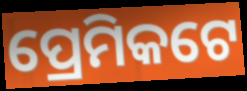
ପ୍ରେମିକଟେ